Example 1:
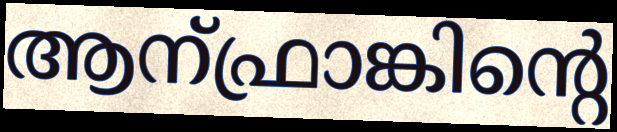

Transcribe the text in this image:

ആന്ഫ്രാങ്കിന്റെ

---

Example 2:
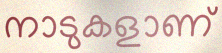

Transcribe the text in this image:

നാടുകളാണ്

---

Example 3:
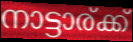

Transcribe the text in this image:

നാട്ടാര്ക്ക്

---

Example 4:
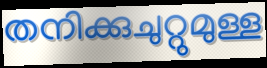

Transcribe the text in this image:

തനിക്കുചുറ്റുമുള്ള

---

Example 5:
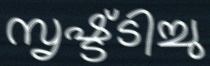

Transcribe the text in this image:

സൃഷ്ട്ടിച്ചു